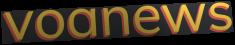
voanews